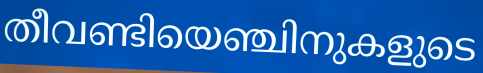
തീവണ്ടിയെഞ്ചിനുകളുടെ